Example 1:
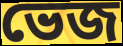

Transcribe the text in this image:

ভেজ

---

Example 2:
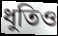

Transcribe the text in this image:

ধুতিও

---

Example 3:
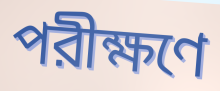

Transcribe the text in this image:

পরীক্ষণে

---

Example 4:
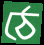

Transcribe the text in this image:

ঠে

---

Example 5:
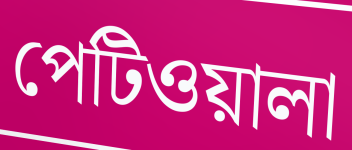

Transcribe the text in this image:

পেটিওয়ালা